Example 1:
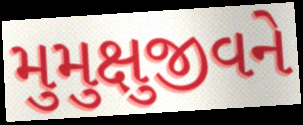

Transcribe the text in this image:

મુમુક્ષુજીવને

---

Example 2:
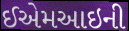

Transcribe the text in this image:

ઈએમઆઇની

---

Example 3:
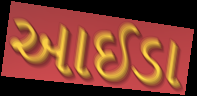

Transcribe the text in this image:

આઈડા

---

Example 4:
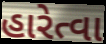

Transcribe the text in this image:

હારેત્વા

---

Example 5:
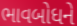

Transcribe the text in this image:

ભાવબોધને